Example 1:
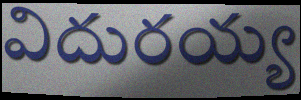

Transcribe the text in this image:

విదురయ్య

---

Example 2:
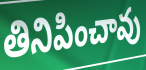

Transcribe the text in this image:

తినిపించావు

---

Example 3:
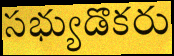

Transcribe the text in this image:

సభ్యుడొకరు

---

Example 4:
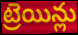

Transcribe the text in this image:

ట్రెయిన్లు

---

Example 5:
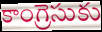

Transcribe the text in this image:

కాంగ్రెసుకు